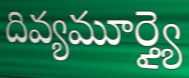
దివ్యమూర్త్యై